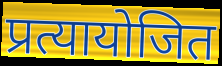
प्रत्यायोजित